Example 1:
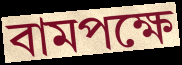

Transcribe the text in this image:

বামপক্ষে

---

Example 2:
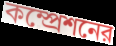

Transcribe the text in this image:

কম্প্রেশনের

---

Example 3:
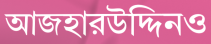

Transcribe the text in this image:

আজহারউদ্দিনও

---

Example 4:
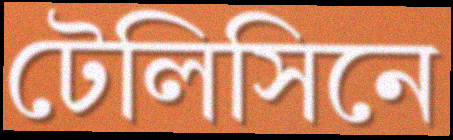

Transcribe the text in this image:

টেলিসিনে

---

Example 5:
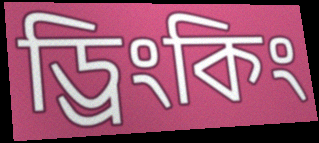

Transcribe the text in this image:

ড্রিংকিং